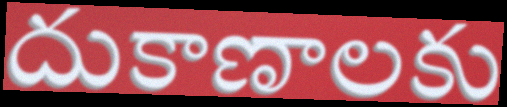
దుకాణాలకు